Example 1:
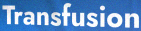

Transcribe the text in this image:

Transfusion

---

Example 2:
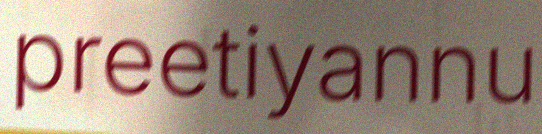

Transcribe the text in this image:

preetiyannu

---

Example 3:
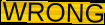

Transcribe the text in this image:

WRONG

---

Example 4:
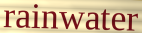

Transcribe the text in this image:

rainwater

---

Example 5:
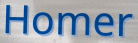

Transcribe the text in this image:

Homer